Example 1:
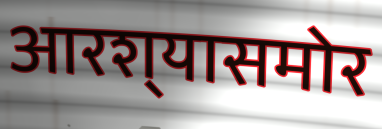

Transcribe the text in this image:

आरश्यासमोर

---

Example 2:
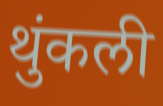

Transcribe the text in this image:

थुंकली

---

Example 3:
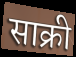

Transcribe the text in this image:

साक्री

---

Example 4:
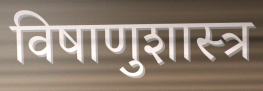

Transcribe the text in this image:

विषाणुशास्त्र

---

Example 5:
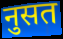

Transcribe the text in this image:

नुसत